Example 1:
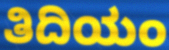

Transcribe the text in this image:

ತಿದಿಯಂ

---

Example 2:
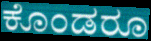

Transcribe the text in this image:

ಕೊಂಡರೂ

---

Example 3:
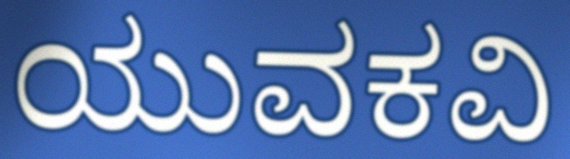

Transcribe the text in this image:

ಯುವಕವಿ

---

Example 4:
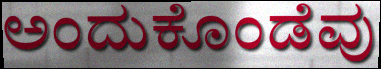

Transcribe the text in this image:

ಅಂದುಕೊಂಡೆವು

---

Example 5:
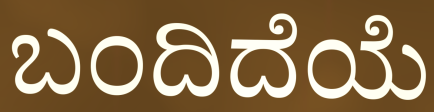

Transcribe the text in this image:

ಬಂದಿದೆಯೆ